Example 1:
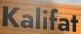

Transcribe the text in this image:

Kalifat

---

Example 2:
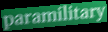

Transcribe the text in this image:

paramilitary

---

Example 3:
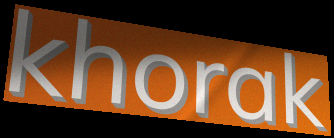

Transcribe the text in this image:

khorak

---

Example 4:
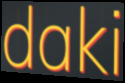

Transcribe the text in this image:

daki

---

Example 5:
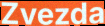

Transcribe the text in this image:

Zvezda